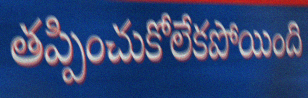
తప్పించుకోలేకపోయింది